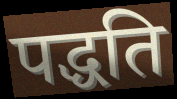
पद्धति